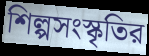
শিল্পসংস্কৃতির